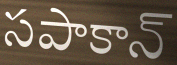
సపాకాన్